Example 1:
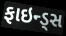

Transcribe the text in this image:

ફાઇન્ડ્સ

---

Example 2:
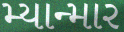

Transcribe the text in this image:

મ્યાન્માર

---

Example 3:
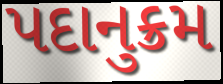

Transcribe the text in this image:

પદાનુક્રમ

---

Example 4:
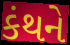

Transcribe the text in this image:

કંથને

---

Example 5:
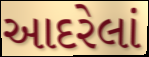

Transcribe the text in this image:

આદરેલાં